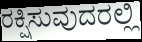
ರಕ್ಷಿಸುವುದರಲ್ಲಿ